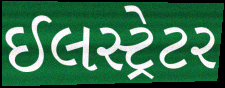
ઈલસ્ટ્રેટર